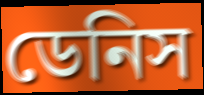
ডেনিস